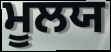
ਮੂਲਯ